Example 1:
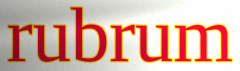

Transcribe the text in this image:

rubrum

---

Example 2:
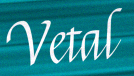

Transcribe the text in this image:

Vetal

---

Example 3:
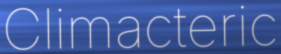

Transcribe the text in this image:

Climacteric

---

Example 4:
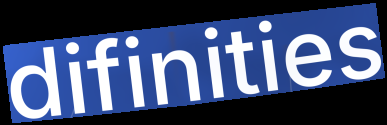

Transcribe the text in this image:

difinities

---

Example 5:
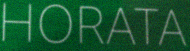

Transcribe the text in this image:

HORATA